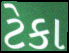
ટેકા